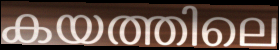
കയത്തിലെ